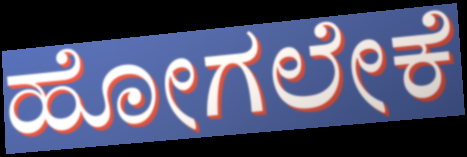
ಹೋಗಲೇಕೆ